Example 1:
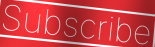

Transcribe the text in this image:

Subscribe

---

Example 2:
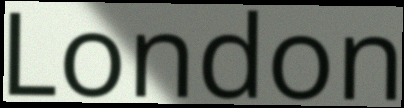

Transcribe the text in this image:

London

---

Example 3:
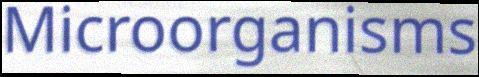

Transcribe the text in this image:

Microorganisms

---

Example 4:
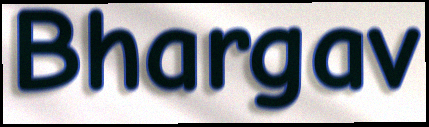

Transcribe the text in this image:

Bhargav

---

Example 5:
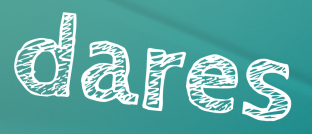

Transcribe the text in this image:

dares